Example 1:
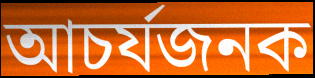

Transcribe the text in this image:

আচৰ্যজনক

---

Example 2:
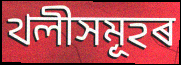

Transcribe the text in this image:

থলীসমূহৰ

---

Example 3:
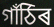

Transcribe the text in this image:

গাঁঠিৰ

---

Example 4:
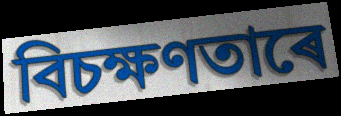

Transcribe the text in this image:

বিচক্ষণতাৰে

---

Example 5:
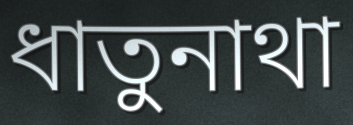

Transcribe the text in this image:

ধাতুনাথা